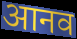
आनव